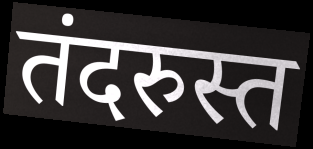
तंदरुस्त